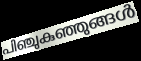
പിഞ്ചുകുഞ്ഞുങ്ങൾ